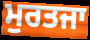
ਮੁਰਤਜਾ